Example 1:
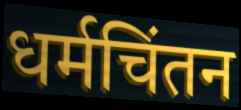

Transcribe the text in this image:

धर्मचिंतन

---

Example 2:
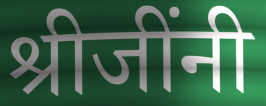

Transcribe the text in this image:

श्रीजींनी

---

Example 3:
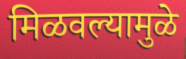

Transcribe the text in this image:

मिळवल्यामुळे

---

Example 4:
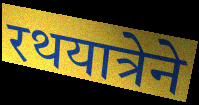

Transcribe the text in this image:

रथयात्रेने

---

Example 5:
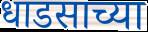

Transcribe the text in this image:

धाडसाच्या